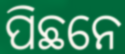
ପିଛନେ